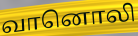
வானொலி